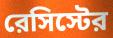
রেসিস্টের